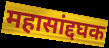
महासांद्दघक